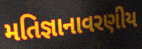
મતિજ્ઞાનાવરણીય